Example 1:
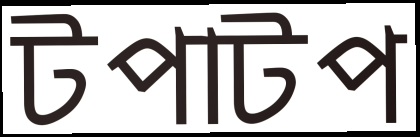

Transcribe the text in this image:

টপাটপ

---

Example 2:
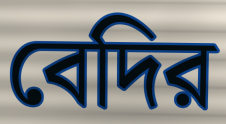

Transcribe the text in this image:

বেদির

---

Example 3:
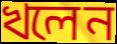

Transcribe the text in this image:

খলেন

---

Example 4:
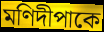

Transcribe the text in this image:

মণিদীপাকে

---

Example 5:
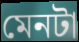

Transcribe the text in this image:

মেনটা